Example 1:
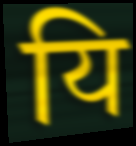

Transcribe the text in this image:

यि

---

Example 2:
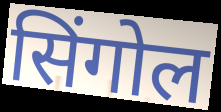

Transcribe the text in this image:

सिंगोल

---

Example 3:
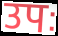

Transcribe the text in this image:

उपः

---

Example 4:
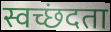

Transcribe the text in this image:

स्वच्छंदता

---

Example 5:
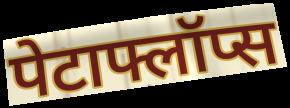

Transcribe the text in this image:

पेटाफ्लॉप्स